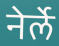
नेर्ले